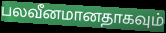
பலவீனமானதாகவும்